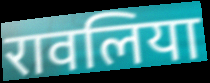
रावलिया